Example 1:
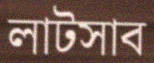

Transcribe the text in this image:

লাটসাব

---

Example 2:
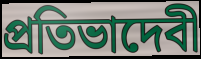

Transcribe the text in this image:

প্রতিভাদেবী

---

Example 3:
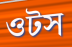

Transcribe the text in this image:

ওটস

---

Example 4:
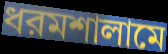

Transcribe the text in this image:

ধরমশালামে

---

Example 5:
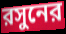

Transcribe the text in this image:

রসুনের